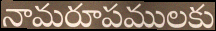
నామరూపములకు